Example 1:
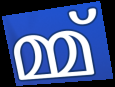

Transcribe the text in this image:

മ്മ്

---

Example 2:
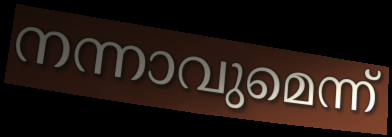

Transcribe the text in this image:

നന്നാവുമെന്ന്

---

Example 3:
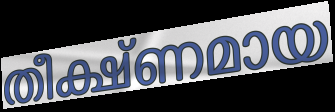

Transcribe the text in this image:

തീക്ഷ്‌ണമായ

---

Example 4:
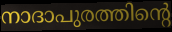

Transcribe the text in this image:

നാദാപുരത്തിന്റെ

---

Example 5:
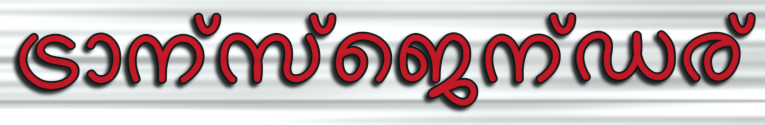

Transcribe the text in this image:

ട്രാന്സ്ജെന്ഡര്